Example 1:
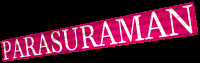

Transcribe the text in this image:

PARASURAMAN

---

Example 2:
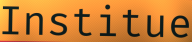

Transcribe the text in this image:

Institue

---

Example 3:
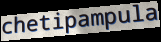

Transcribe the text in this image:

chetipampula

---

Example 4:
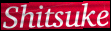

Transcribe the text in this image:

Shitsuke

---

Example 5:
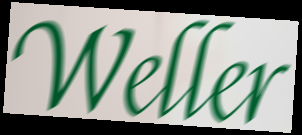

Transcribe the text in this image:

Weller